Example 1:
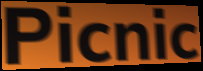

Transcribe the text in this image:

Picnic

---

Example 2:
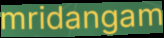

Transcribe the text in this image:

mridangam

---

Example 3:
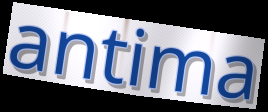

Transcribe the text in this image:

antima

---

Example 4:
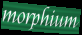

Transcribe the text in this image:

morphium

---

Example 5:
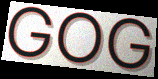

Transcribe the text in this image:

GOG